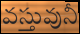
వస్తువునీ